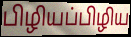
பிழியப்பிழிய